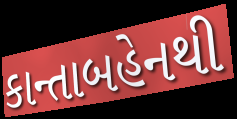
કાન્તાબહેનથી